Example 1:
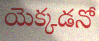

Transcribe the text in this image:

యెక్కడనో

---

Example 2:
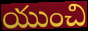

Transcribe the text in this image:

యుంచి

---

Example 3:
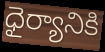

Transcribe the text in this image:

ధైర్యానికి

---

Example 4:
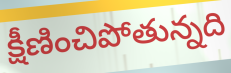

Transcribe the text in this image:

క్షీణించిపోతున్నది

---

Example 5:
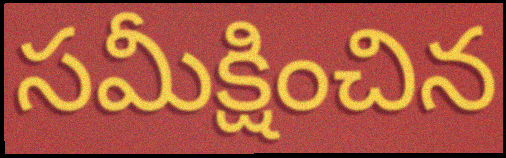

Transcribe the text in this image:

సమీక్షించిన